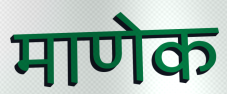
माणेक